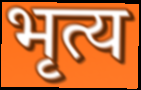
भृत्य